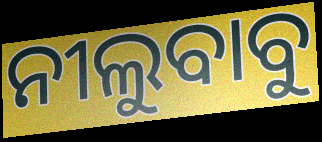
ନୀଲୁବାବୁ